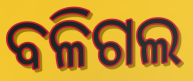
ବଳିଗଲ